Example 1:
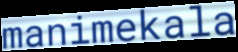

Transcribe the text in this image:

manimekala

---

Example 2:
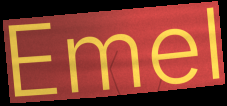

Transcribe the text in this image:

Emel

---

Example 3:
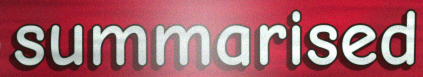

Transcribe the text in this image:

summarised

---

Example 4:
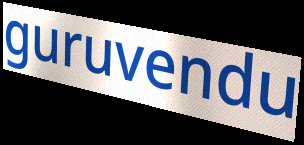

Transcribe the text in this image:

guruvendu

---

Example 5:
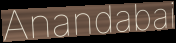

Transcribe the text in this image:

Anandabai